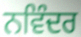
ਨਵਿੰਦਰ